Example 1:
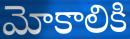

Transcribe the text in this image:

మోకాలికి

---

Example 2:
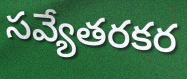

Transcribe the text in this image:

సవ్యేతరకర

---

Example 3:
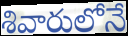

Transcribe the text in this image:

శివారులోనే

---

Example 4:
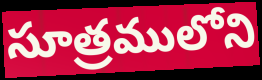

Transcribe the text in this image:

సూత్రములోని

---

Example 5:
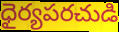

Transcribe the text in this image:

ధైర్యపరచుడి